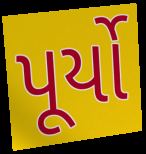
પૂર્યો